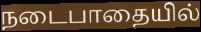
நடைபாதையில்